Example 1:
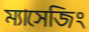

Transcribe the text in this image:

ম্যাসেজিং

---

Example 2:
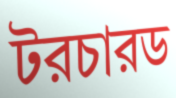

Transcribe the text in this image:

টরচারড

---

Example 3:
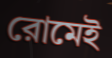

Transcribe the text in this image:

রোমেই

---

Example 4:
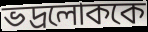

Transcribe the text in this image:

ভদ্রলোককে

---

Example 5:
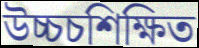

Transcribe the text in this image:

উচ্চচশিক্ষিত